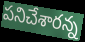
పనిచేశారన్న